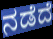
ನಡೆದೆ